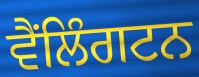
ਵੈਂਲਿੰਗਟਨ